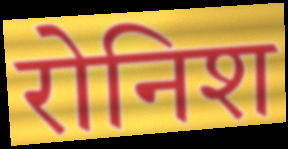
रोनिश